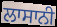
ਲਾਸਾਨੀ